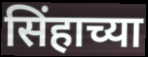
सिंहाच्या